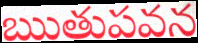
ఋతుపవన